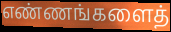
எண்ணங்களைத்